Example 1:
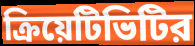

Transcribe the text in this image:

ক্রিয়েটিভিটির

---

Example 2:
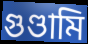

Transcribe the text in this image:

গুণ্ডামি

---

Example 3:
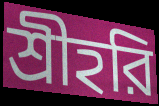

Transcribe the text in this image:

শ্রীহরি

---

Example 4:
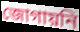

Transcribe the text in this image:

জোগায়নি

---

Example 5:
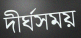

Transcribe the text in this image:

দীর্ঘসময়